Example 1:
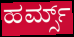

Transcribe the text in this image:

ಹರ್ಮ್ಸ್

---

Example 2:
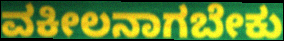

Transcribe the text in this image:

ವಕೀಲನಾಗಬೇಕು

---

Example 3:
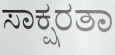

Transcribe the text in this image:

ಸಾಕ್ಷರತಾ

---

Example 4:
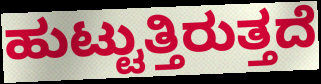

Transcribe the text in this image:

ಹುಟ್ಟುತ್ತಿರುತ್ತದೆ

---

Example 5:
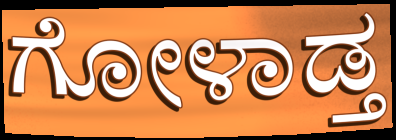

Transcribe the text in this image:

ಗೋಳಾಡ್ತ